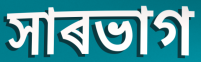
সাৰভাগ